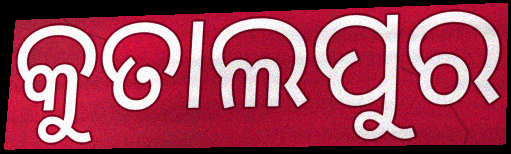
କୁତାଲପୁର